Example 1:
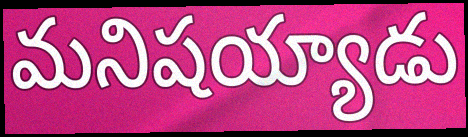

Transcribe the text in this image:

మనిషయ్యాడు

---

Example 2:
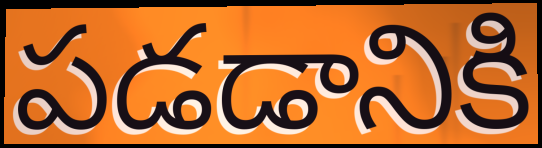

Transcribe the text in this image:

పడడానికి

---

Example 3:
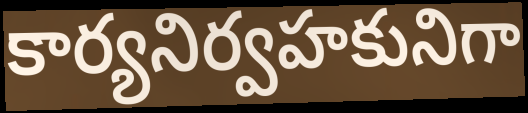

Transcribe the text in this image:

కార్యనిర్వహకునిగా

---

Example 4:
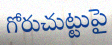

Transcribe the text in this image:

గోరుచుట్టుపై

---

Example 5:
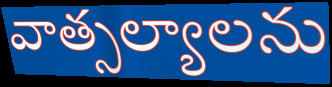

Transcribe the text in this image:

వాత్సల్యాలను